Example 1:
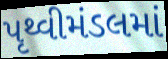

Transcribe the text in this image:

પૃથ્વીમંડલમાં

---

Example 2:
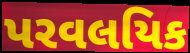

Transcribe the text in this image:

પરવલયિક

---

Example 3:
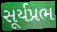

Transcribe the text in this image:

સૂર્યપ્રભ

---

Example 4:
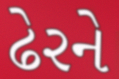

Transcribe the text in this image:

ઢેરને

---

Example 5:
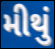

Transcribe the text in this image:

મીથું